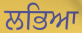
ਲਭਿਆ